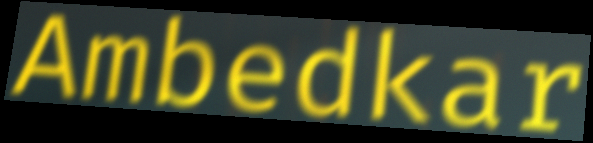
Ambedkar